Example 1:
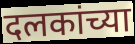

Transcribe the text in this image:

दलकांच्या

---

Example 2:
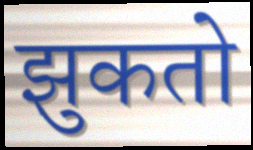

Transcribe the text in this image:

झुकतो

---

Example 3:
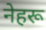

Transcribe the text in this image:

नेहरू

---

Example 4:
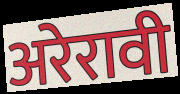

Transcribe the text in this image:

अरेरावी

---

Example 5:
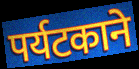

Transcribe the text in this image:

पर्यटकाने